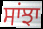
ਸਾਂਝਾ